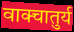
वाक्चातुर्य